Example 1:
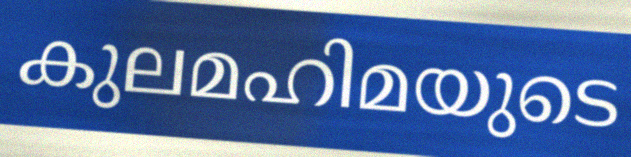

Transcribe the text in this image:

കുലമഹിമയുടെ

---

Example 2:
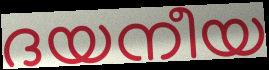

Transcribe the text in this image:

ദയനീയ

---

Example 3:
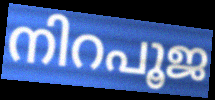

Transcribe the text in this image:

നിറപൂജ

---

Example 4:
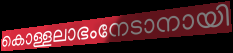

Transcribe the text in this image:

കൊള്ളലാഭംനേടാനായി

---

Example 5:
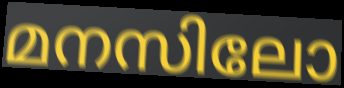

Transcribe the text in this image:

മനസിലോ